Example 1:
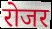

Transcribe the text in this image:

रोजर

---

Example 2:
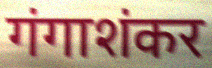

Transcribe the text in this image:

गंगाशंकर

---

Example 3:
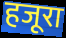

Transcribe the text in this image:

हजूरा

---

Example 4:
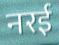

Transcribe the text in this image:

नरई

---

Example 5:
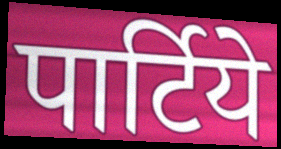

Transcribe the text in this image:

पार्टिये